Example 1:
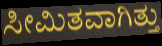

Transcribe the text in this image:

ಸೀಮಿತವಾಗಿತ್ತು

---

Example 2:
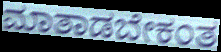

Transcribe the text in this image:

ಮಾತಾಡಬೇಕಂತ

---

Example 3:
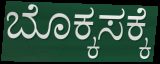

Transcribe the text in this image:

ಬೊಕ್ಕಸಕ್ಕೆ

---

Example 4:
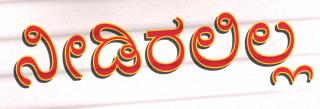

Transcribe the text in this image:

ನೀಡಿರಲಿಲ್ಲ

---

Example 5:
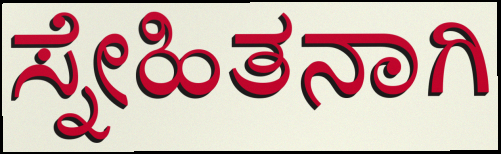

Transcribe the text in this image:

ಸ್ನೇಹಿತನಾಗಿ